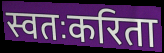
स्वतःकरिता